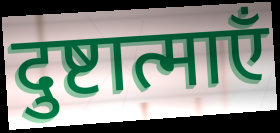
दुष्टात्माएँ